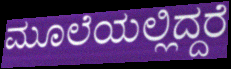
ಮೂಲೆಯಲ್ಲಿದ್ದರೆ